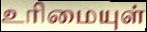
உரிமையுள்